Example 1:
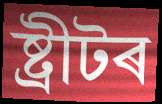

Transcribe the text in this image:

ষ্ট্ৰীটৰ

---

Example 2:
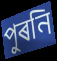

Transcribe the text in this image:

পুৰনি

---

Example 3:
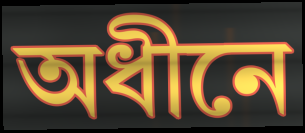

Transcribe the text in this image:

অধীনে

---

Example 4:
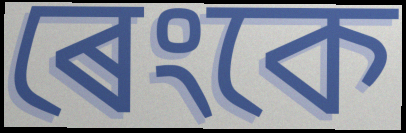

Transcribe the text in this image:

ৰেংকে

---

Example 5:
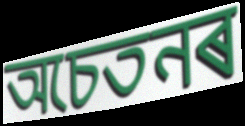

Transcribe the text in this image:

অচেতনৰ